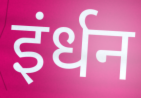
इंर्धन